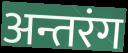
अन्तरंग